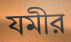
যমীর